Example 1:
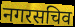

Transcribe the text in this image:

नगरसचिव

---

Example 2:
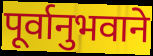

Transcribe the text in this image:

पूर्वानुभवाने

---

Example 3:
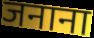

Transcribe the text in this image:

जनाना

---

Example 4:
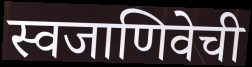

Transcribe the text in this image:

स्वजाणिवेची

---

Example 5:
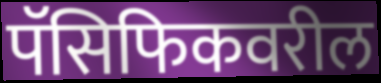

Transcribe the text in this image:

पॅसिफिकवरील